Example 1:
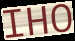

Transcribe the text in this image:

IHO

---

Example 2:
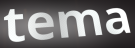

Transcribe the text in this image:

tema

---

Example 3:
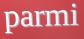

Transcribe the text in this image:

parmi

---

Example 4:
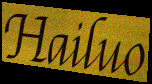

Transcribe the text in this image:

Hailuo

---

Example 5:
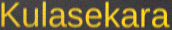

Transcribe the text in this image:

Kulasekara